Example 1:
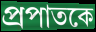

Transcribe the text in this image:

প্রপাতকে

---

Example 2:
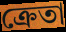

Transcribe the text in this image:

ক্রেতা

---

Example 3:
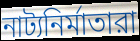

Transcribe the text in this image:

নাট্যনির্মাতারা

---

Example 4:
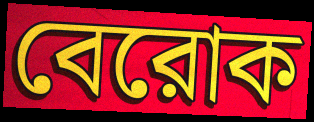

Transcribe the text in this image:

বেরোক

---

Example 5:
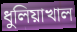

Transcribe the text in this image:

ধুলিয়াখাল